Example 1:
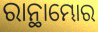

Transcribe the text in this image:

ରାନ୍ଥାମ୍ଭୋର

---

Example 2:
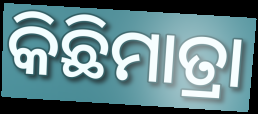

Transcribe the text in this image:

କିଛିମାତ୍ରା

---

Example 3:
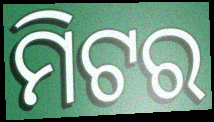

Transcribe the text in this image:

ମିଟର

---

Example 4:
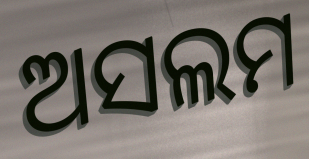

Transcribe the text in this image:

ଅସଲମ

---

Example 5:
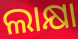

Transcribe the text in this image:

ଲାକ୍ଷା